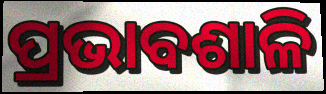
ପ୍ରଭାବଶାଳି